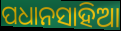
ପଧାନସାହିଆ